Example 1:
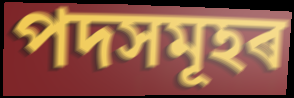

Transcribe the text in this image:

পদসমূহৰ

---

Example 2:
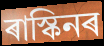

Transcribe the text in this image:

ৰাস্কিনৰ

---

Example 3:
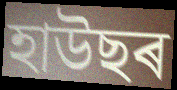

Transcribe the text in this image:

হাউছৰ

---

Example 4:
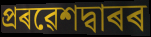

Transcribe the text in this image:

প্ৰৰৱেশদ্বাৰৰ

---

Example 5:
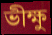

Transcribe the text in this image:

ভীক্ষু